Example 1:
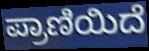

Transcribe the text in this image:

ಪ್ರಾಣಿಯಿದೆ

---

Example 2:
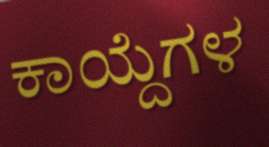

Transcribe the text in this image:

ಕಾಯ್ದೆಗಳ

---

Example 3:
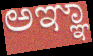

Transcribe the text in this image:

ಅಞ್ಞಾ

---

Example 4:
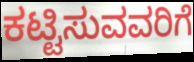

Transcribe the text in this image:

ಕಟ್ಟಿಸುವವರಿಗೆ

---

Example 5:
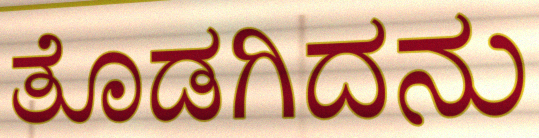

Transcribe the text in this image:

ತೊಡಗಿದನು